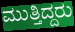
ಮುತ್ತಿದ್ದರು